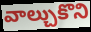
వాల్చుకొని